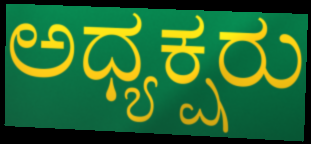
ಅಧ್ಯಕ್ಷರು